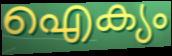
ഐക്യം